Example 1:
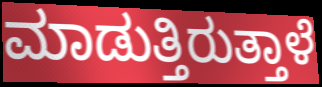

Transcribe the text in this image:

ಮಾಡುತ್ತಿರುತ್ತಾಳೆ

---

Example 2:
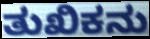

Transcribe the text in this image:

ತುಖಿಕನು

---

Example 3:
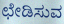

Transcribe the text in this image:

ಛೇಡಿಸುವ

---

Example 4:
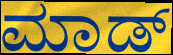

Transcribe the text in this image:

ಮಾಡ್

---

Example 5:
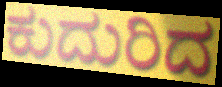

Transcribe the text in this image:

ಕುದುರಿದ